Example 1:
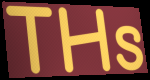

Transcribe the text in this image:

THs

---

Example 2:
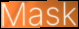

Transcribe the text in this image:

Mask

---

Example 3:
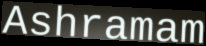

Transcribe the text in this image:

Ashramam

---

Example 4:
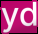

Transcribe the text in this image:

yd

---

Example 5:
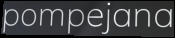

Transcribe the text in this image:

pompejana